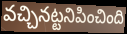
వచ్చినట్టనిపించింది